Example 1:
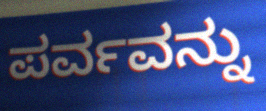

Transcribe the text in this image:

ಪರ್ವವನ್ನು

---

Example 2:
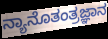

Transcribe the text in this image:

ನ್ಯಾನೊತಂತ್ರಜ್ಞಾನ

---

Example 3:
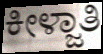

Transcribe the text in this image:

ಕೀಳ್ಜಾತಿ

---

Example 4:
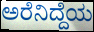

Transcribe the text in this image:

ಅರೆನಿದ್ದೆಯ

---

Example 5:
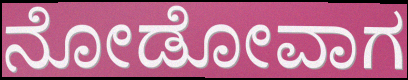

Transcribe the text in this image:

ನೋಡೋವಾಗ